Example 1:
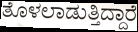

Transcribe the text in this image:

ತೊಳಲಾಡುತ್ತಿದ್ದಾರೆ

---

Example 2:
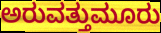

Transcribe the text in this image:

ಅರುವತ್ತುಮೂರು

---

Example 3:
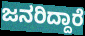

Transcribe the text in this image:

ಜನರಿದ್ದಾರೆ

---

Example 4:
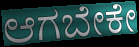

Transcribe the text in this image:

ಆಗಬೇಕೇ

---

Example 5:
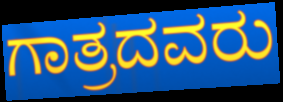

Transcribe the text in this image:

ಗಾತ್ರದವರು